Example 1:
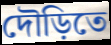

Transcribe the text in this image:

দৌড়িতে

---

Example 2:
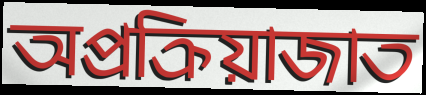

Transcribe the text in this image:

অপ্রক্রিয়াজাত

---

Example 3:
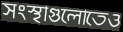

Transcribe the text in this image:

সংস্থাগুলোতেও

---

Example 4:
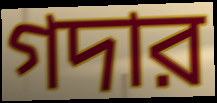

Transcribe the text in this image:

গদার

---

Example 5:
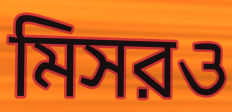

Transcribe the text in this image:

মিসরও